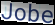
Jobe